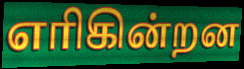
எரிகின்றன